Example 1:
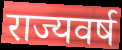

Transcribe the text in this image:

राज्यवर्ष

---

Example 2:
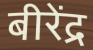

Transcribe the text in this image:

बीरेंद्र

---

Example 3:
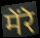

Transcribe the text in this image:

मेंरे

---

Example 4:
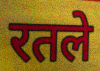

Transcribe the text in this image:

रतले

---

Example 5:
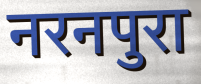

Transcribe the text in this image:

नरनपुरा